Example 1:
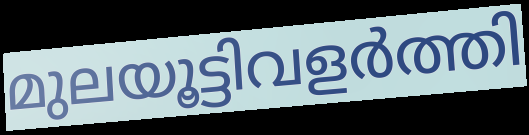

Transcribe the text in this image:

മുലയൂട്ടിവളർത്തി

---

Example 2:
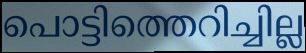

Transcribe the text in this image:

പൊട്ടിത്തെറിച്ചില്ല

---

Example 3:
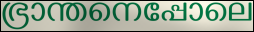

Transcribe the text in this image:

ഭ്രാന്തനെപ്പോലെ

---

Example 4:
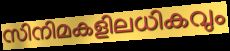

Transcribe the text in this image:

സിനിമകളിലധികവും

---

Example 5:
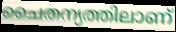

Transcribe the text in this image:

ചൈതന്യത്തിലാണ്